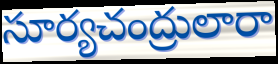
సూర్యచంద్రులారా